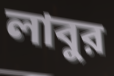
লাবুর